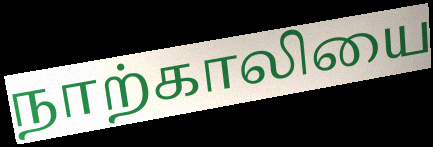
நாற்காலியை